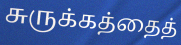
சுருக்கத்தைத்